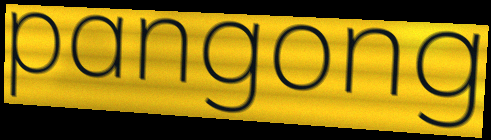
pangong